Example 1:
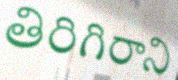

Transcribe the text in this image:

తిరిగిరాని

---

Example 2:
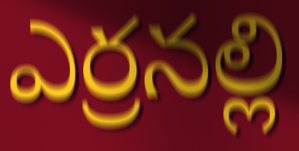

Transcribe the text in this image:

ఎర్రనల్లి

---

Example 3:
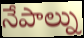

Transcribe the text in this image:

నేపాల్ను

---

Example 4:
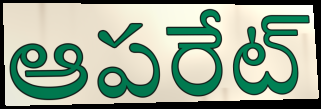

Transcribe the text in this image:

ఆపరేట్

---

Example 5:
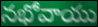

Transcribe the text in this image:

నభోవాయు